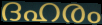
ദഹരം